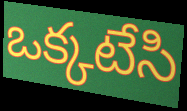
ఒక్కటేసి